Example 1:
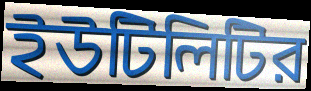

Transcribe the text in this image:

ইউটিলিটির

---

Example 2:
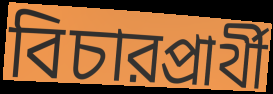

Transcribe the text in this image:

বিচারপ্রার্থী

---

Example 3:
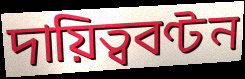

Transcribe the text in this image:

দায়িত্ববণ্টন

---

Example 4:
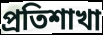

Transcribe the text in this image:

প্রতিশাখা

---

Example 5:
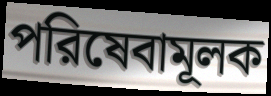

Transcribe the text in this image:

পরিষেবামূলক